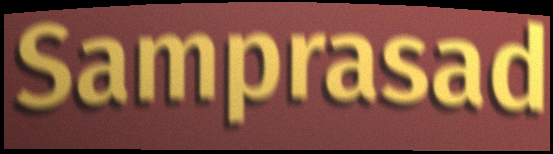
Samprasad